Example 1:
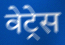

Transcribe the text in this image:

वेट्रेस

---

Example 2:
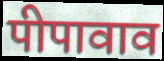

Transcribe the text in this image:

पीपावाव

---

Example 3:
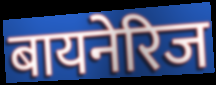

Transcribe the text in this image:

बायनेरिज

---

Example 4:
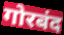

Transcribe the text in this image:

गोरबंद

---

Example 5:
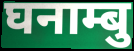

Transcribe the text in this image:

घनाम्बु